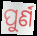
ପୁର୍ଣ